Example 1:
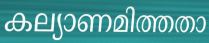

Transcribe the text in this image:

കല്യാണമിത്തതാ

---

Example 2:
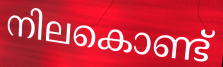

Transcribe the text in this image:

നിലകൊണ്ട്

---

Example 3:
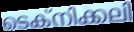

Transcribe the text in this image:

ടെക്‌നിക്കലി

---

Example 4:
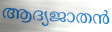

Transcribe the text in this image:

ആദ്യജാതൻ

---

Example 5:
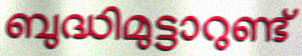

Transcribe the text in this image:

ബുദ്ധിമുട്ടാറുണ്ട്